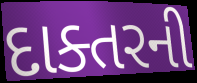
દાક્તરની